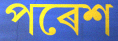
পৰেশ